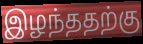
இழந்ததற்கு